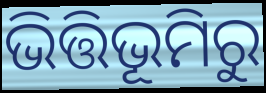
ଭିତ୍ତିଭୂମିରୁ